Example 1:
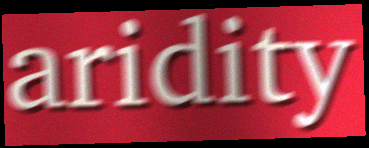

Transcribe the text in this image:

aridity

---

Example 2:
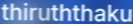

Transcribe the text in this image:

thiruththaku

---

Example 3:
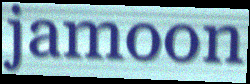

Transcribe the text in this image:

jamoon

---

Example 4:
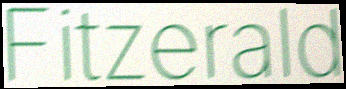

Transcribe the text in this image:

Fitzerald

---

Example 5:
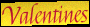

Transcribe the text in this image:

Valentines